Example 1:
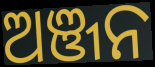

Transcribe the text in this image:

ଅଞ୍ଜନ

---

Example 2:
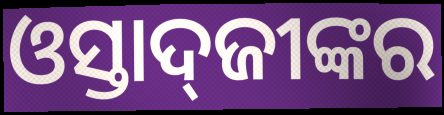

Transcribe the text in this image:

ଓସ୍ତାଦ୍‌ଜୀଙ୍କର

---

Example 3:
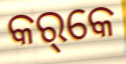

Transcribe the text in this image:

କର୍‌କେ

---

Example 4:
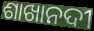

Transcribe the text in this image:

ଶାଖାନଦୀ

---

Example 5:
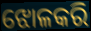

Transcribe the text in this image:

ଝୋଳକରି